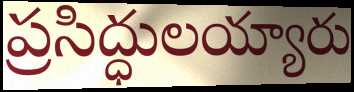
ప్రసిద్ధులయ్యారు